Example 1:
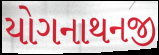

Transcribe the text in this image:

યોગનાથનજી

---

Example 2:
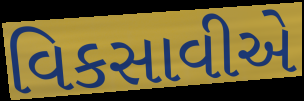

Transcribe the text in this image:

વિકસાવીએ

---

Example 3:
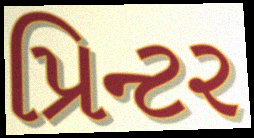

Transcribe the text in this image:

પ્રિન્ટર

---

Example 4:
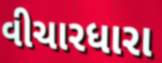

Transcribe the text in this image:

વીચારધારા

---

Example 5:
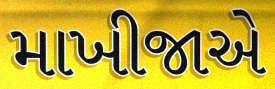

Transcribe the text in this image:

માખીજાએ